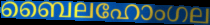
ബൈലഹോംഗല